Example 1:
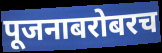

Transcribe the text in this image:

पूजनाबरोबरच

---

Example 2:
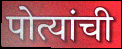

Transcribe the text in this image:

पोत्यांची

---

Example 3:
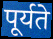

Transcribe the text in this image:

पूर्यते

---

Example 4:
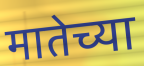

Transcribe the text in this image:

मातेच्या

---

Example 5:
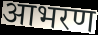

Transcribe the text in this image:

आभरण